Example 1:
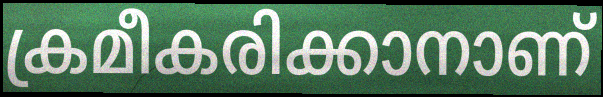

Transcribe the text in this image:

ക്രമീകരിക്കാനാണ്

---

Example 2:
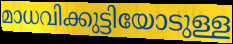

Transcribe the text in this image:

മാധവിക്കുട്ടിയോടുള്ള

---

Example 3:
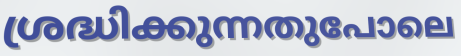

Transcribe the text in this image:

ശ്രദ്ധിക്കുന്നതുപോലെ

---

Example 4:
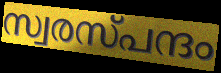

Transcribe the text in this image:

സ്വരസ്പന്ദം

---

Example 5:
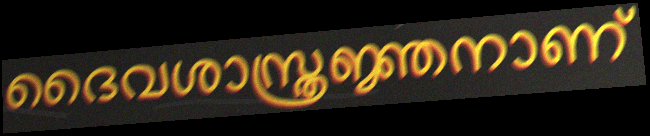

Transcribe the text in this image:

ദൈവശാസ്ത്രജ്ഞനാണ്